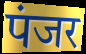
पंजर